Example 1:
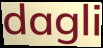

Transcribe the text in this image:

dagli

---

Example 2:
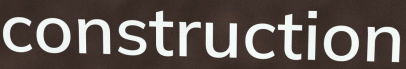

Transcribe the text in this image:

construction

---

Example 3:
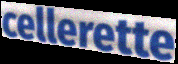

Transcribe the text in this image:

cellerette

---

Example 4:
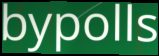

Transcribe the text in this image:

bypolls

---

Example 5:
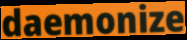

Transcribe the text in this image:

daemonize